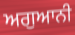
ਅਗੁਆਨੀ